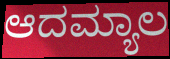
ಆದಮ್ಯಾಲ